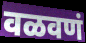
वळवणं